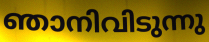
ഞാനിവിടുന്നു